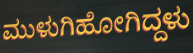
ಮುಳುಗಿಹೋಗಿದ್ದಳು